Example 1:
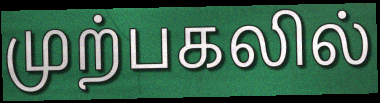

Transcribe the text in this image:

முற்பகலில்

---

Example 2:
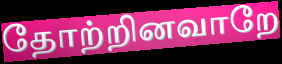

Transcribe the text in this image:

தோற்றினவாறே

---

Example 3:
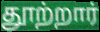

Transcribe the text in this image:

தூற்றார்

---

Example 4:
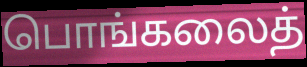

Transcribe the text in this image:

பொங்கலைத்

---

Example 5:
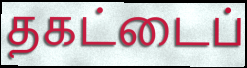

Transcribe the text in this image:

தகட்டைப்